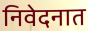
निवेदनात